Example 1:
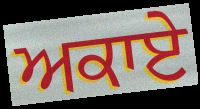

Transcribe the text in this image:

ਅਕਾਏ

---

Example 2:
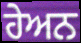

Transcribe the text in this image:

ਹੇਅਨ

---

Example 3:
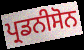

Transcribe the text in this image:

ਪ੍ਰਡਨੀਸੋਨ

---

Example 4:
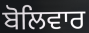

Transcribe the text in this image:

ਬੋਲਿਵਾਰ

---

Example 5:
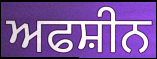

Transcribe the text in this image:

ਅਫਸ਼ੀਨ